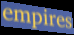
empires